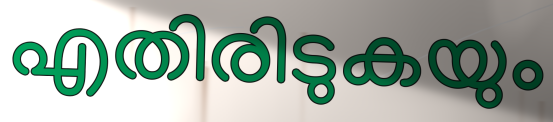
എതിരിടുകയും